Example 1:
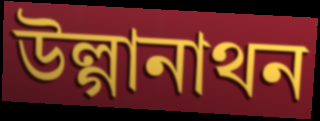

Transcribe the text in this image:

উল্গানাথন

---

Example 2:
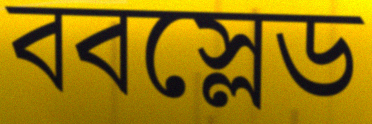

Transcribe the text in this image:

ববস্লেড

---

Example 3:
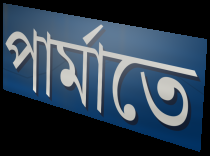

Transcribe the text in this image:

পার্মাতে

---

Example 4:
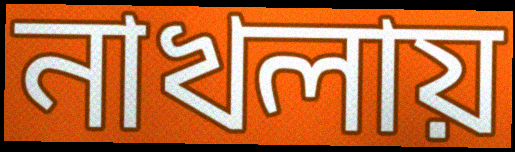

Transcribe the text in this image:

নাখলায়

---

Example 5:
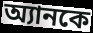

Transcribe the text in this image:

অ্যানকে